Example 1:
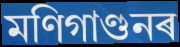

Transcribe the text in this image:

মণিগাণ্ডনৰ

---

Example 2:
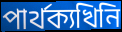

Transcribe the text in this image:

পাৰ্থক্যখিনি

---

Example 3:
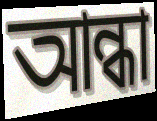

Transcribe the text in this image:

আন্ধা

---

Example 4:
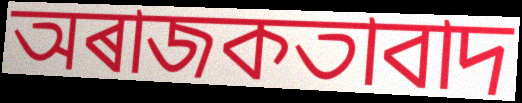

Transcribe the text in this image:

অৰাজকতাবাদ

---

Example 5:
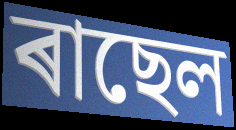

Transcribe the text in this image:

ৰাছেল